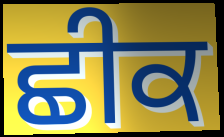
ਛੀਕ